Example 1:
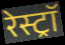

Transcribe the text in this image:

रेस्ट्रॉ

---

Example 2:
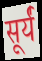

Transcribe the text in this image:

सूर्य॑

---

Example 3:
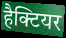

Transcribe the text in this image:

हैक्टियर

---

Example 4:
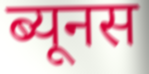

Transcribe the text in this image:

ब्यूनस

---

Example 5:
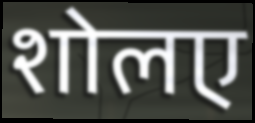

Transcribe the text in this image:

शोलए